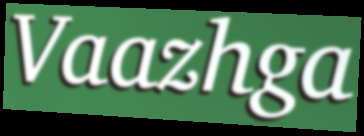
Vaazhga